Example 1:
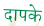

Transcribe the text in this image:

दापके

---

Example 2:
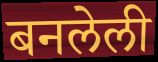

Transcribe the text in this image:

बनलेली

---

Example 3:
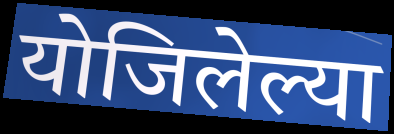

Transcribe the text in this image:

योजिलेल्या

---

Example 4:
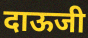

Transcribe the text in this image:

दाऊजी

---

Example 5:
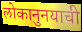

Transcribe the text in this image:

लोकानुनयाची